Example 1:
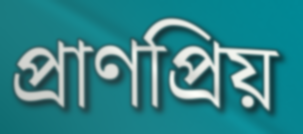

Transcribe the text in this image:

প্রাণপ্রিয়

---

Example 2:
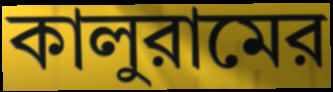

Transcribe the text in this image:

কালুরামের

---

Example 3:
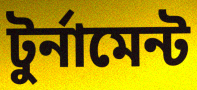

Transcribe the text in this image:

টুর্নামেন্ট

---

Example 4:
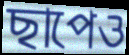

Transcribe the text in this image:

ছাপেও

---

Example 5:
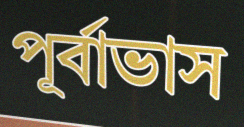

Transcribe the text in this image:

পূর্বাভাস